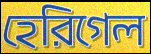
হেরিগেল